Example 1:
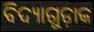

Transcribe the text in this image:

ବିଦ୍ୟାଗୁଡ଼ାକ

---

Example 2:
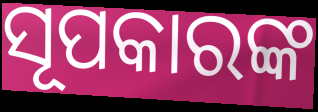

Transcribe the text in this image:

ସୂପକାରଙ୍କ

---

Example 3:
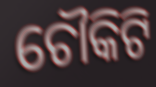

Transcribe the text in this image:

ଚୌକିଟି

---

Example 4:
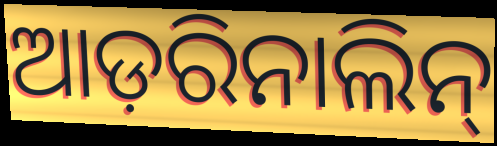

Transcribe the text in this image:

ଆଡ଼ରିନାଲିନ୍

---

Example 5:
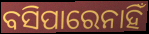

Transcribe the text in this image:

ବସିପାରେନାହିଁ